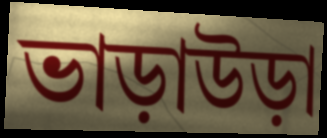
ভাড়াউড়া